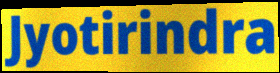
Jyotirindra